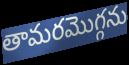
తామరమొగ్గను